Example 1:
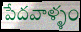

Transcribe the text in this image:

పేదవాళ్ళం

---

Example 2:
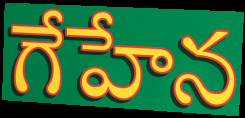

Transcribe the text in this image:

గేహేన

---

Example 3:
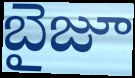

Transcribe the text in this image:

బైజూ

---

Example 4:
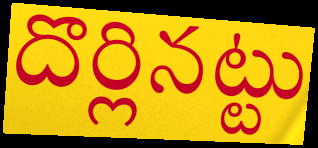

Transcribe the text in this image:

దొర్లినట్టు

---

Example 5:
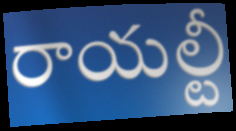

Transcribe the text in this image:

రాయల్టీ